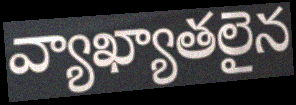
వ్యాఖ్యాతలైన